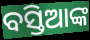
ବସ୍ତିଆଙ୍କ